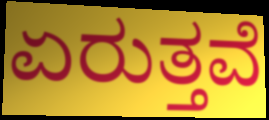
ಏರುತ್ತವೆ